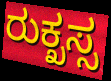
ರುಕ್ಖಸ್ಸ